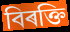
বিৰক্তি